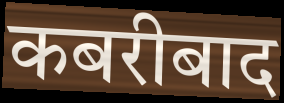
कबरीबाद